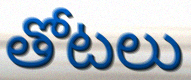
తోటలు